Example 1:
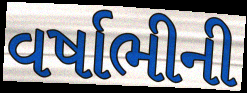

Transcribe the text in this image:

વર્ષાભીની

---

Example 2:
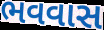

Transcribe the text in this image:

ભવવાસ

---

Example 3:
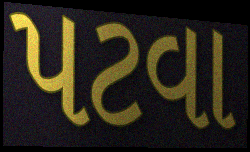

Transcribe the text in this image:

પટવા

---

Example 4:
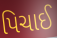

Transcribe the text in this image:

પિચાઈ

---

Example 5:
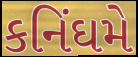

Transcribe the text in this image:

કનિંઘમે